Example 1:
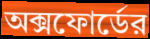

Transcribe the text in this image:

অক্সফোর্ডের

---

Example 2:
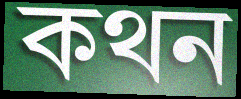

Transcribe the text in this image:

কথন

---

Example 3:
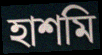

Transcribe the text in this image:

হাশমি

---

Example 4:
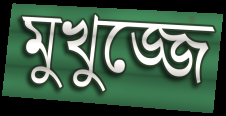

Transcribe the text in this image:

মুখুজ্জে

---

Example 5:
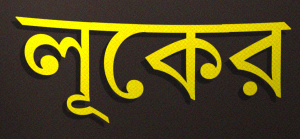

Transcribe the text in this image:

লূকের